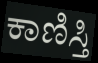
ಕಾಣಿಸ್ತಿ